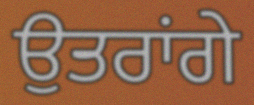
ਉਤਰਾਂਗੇ